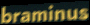
braminus